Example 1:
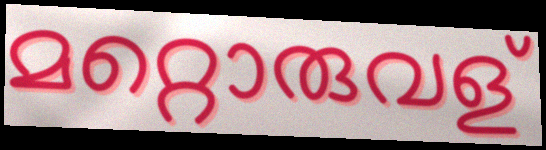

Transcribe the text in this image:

മറ്റൊരുവള്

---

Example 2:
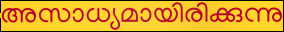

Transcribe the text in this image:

അസാധ്യമായിരിക്കുന്നു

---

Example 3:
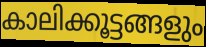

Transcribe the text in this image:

കാലിക്കൂട്ടങ്ങളും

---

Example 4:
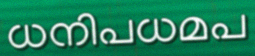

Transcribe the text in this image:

ധനിപധമപ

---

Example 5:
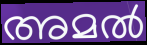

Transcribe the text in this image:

അമൽ